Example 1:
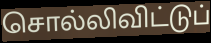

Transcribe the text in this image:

சொல்லிவிட்டுப்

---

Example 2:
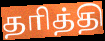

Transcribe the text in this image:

தரித்தி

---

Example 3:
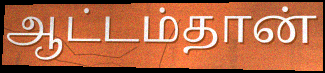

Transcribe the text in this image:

ஆட்டம்தான்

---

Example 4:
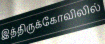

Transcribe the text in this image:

இத்திருக்கோவிலில்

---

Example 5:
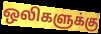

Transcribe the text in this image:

ஒலிகளுக்கு